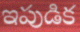
ఇపుడిక